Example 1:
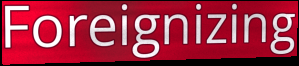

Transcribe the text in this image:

Foreignizing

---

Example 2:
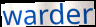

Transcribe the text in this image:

warder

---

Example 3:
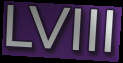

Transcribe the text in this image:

LVIII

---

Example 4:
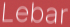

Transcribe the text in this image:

Lebar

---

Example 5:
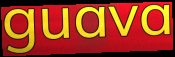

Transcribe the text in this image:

guava